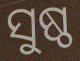
ସୁଷ୍ଠ